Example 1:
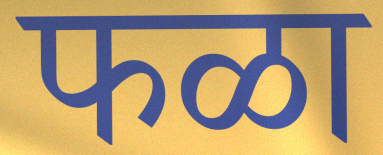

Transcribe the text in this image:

फळा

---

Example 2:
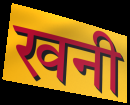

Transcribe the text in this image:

खनी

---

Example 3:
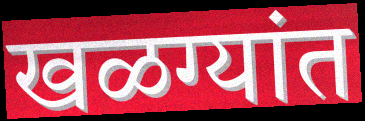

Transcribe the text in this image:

खळग्यांत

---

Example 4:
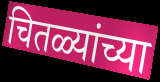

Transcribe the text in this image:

चितळ्यांच्या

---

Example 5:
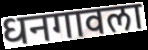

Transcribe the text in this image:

धनगावला